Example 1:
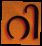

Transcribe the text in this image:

റി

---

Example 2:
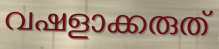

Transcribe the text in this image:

വഷളാക്കരുത്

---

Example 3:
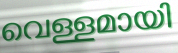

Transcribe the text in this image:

വെള്ളമായി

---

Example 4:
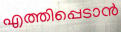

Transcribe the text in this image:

എത്തിപ്പെടാൻ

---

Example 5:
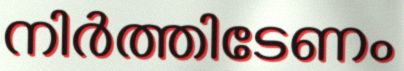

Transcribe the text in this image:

നിർത്തിടേണം